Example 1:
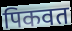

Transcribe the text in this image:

पिकवत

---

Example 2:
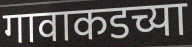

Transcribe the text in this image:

गावाकडच्या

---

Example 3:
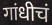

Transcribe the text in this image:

गांधीचं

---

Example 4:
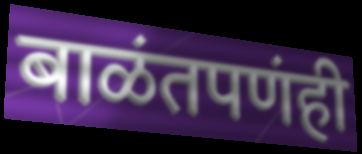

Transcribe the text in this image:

बाळंतपणंही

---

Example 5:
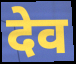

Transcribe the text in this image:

देव